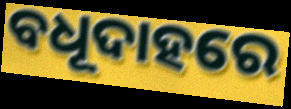
ବଧୂଦାହରେ